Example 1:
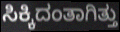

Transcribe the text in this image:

ಸಿಕ್ಕಿದಂತಾಗಿತ್ತು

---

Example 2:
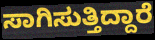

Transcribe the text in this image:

ಸಾಗಿಸುತ್ತಿದ್ದಾರೆ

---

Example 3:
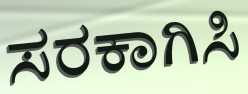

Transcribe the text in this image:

ಸರಕಾಗಿಸಿ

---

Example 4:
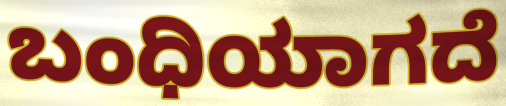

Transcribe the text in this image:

ಬಂಧಿಯಾಗದೆ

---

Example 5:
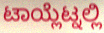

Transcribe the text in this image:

ಟಾಯ್ಲೆಟ್ನಲ್ಲಿ